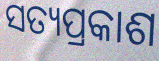
ସତ୍ୟପ୍ରକାଶ